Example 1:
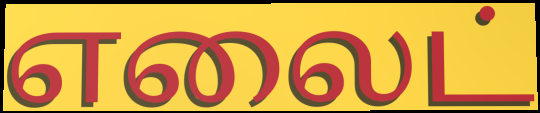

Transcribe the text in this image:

எலைட்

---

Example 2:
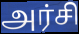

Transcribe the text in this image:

அர்சி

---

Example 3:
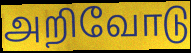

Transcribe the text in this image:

அறிவோடு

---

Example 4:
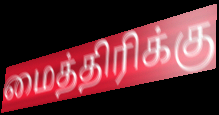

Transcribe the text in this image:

மைத்திரிக்கு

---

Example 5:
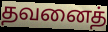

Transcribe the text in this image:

தவனைத்